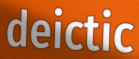
deictic